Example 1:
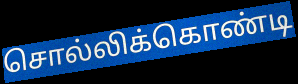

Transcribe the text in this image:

சொல்லிக்கொண்டி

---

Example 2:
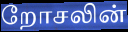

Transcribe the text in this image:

றோசலின்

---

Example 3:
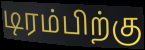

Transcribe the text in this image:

டிரம்பிற்கு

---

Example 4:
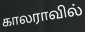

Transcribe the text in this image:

காலராவில்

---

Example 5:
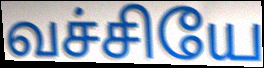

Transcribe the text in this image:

வச்சியே